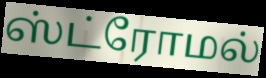
ஸ்ட்ரோமல்